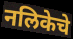
नलिकेचे